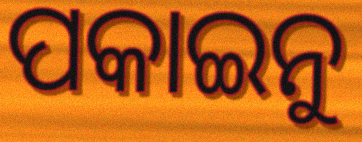
ପକାଇନୁ